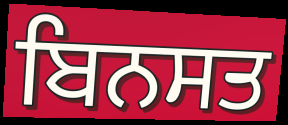
ਬਿਨਸਤ